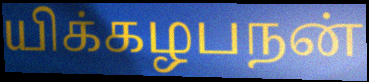
யிக்கழபநன்